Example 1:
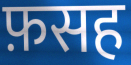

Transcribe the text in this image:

फ़सह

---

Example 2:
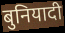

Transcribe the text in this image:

बुनियादी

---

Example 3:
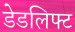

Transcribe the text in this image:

डेडलिफ्ट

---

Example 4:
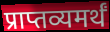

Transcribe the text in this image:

प्राप्तव्यमर्थं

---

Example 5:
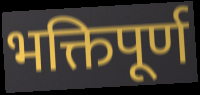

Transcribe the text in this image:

भक्तिपूर्ण